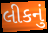
લીકનું